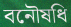
বনৌষধি